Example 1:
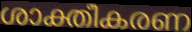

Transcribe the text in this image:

ശാക്തീകരണ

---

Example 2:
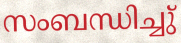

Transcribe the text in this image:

സംബന്ധിച്ചു്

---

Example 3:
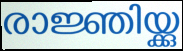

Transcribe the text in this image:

രാജ്ഞിയ്ക്കു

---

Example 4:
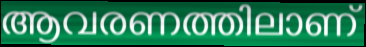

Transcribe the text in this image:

ആവരണത്തിലാണ്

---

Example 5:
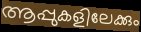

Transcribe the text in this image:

ആപ്പുകളിലേക്കും